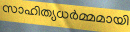
സാഹിത്യധർമ്മമായി